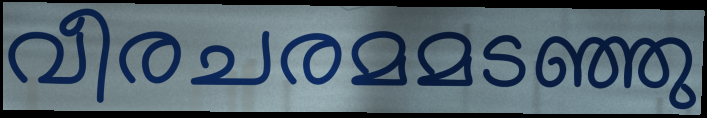
വീരചരമമടഞ്ഞു